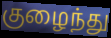
குழைந்து